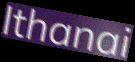
Ithanai